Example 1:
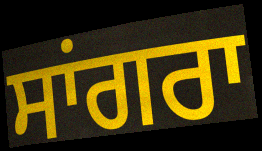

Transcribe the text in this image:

ਸਾਂਗਰਾ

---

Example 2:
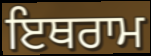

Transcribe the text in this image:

ਇਥਰਾਮ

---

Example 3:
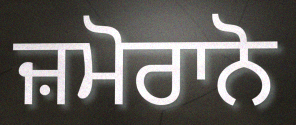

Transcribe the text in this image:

ਜ਼ਮੋਰਾਨੋ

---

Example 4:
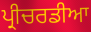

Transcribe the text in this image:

ਪ੍ਰੀਚਰਡੀਆ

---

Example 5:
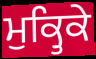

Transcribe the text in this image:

ਮੁਕ੍ਤਿਕੇ